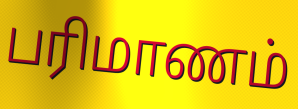
பரிமாணம்